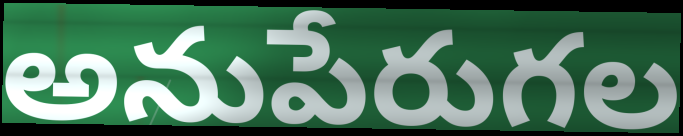
అనుపేరుగల